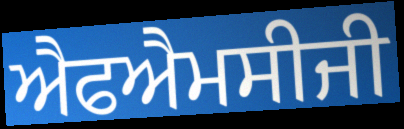
ਐਫਐਮਸੀਜੀ